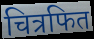
चित्रफित